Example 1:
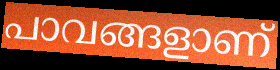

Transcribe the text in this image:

പാവങ്ങളാണ്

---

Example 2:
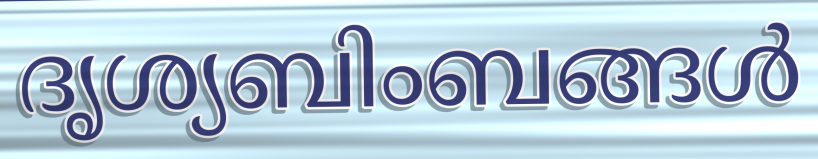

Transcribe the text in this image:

ദൃശ്യബിംബങ്ങൾ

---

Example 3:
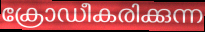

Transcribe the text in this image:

ക്രോഡീകരിക്കുന്ന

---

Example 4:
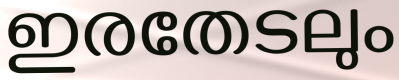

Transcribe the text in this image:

ഇരതേടലും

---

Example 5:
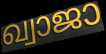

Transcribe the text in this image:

ഖ്വാജാ